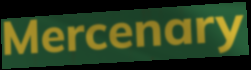
Mercenary